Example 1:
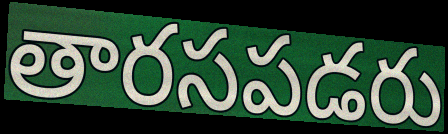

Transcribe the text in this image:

తారసపడరు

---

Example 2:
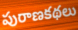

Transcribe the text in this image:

పురాణకథలు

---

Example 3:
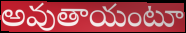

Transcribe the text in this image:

అవుతాయంటూ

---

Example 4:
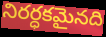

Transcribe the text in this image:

నిరర్ధకమైనది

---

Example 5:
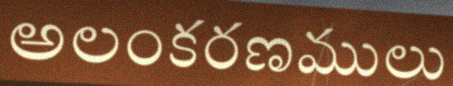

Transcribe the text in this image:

అలంకరణములు